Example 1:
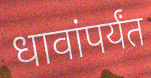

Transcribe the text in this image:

धावांपर्यंत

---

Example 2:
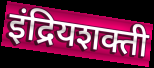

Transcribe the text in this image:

इंद्रियशक्ती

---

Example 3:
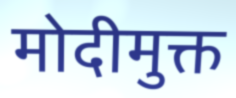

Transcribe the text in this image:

मोदीमुक्त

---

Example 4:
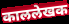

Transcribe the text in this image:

काललेखक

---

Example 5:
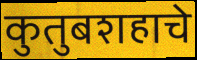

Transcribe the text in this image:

कुतुबशहाचे